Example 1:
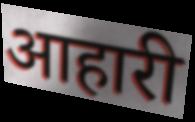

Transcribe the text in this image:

आहारी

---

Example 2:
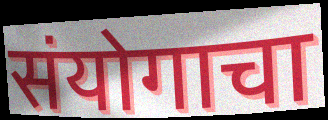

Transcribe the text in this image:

संयोगाचा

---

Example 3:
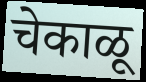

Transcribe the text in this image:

चेकाळू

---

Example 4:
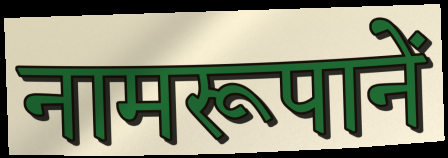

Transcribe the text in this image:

नामरूपानें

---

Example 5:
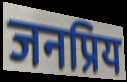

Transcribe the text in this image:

जनप्रिय